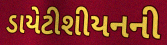
ડાયેટીશીયનની